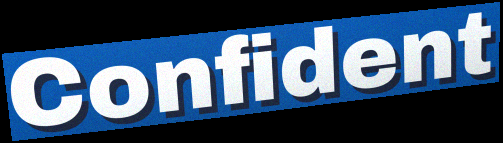
Confident